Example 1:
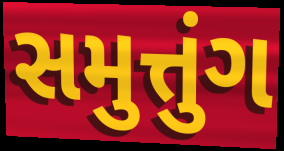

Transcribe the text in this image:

સમુત્તુંગ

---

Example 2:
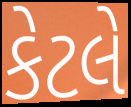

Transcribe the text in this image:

કેટલે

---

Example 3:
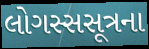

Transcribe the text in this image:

લોગસ્સસૂત્રના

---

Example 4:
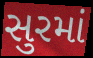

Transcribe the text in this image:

સુરમાં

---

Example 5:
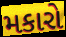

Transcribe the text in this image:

મકારો